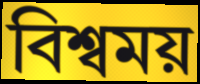
বিশ্বময়